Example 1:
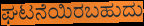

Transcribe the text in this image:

ಘಟನೆಯಿರಬಹುದು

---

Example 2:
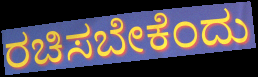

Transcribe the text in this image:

ರಚಿಸಬೇಕೆಂದು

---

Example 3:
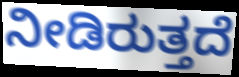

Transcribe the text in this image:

ನೀಡಿರುತ್ತದೆ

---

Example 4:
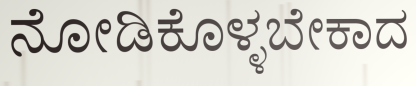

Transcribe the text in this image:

ನೋಡಿಕೊಳ್ಳಬೇಕಾದ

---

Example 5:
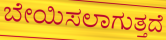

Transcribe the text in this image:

ಬೇಯಿಸಲಾಗುತ್ತದೆ